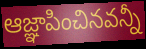
ఆజ్ఞాపించినవన్నీ